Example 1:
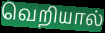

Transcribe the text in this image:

வெறியால்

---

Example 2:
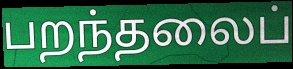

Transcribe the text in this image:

பறந்தலைப்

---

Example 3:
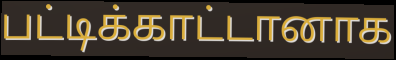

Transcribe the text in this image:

பட்டிக்காட்டானாக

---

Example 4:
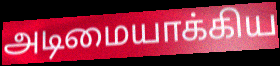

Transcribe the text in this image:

அடிமையாக்கிய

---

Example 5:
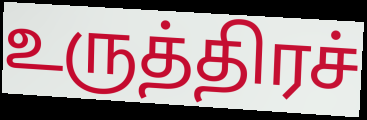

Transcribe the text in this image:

உருத்திரச்